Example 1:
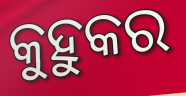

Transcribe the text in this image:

କୁହୁକର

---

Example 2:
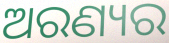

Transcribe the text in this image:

ଅରଣ୍ୟର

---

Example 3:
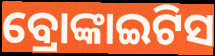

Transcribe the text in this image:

ବ୍ରୋଙ୍କାଇଟିସ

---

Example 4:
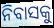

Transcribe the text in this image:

ନିବାସକୁ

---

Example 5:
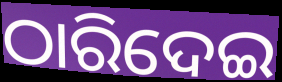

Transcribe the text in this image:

ଠାରିଦେଇ